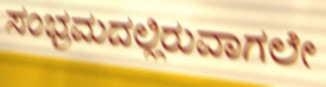
ಸಂಭ್ರಮದಲ್ಲಿರುವಾಗಲೇ